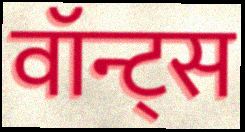
वॉन्ट्स